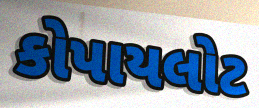
કોપાયલોટ